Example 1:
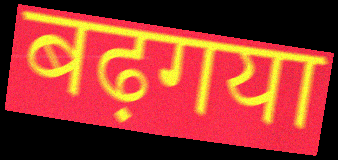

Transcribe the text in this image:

बढ़गया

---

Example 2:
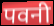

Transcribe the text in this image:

पवनी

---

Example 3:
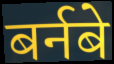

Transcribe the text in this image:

बर्नबे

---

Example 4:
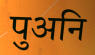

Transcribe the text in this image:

पुअनि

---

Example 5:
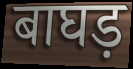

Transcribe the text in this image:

बाघड़